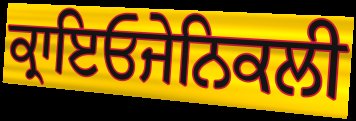
ਕ੍ਰਾਇਓਜੇਨਿਕਲੀ